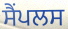
ਸੈਂਪਲਸ